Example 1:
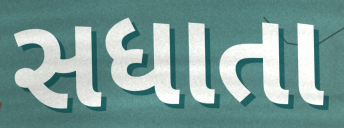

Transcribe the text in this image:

સધાતા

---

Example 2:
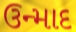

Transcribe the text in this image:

ઉન્માદ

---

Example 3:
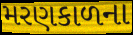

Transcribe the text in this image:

મરણકાળના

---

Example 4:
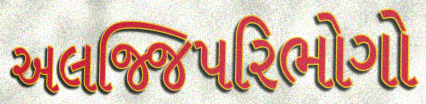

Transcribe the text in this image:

અલજ્જિપરિભોગો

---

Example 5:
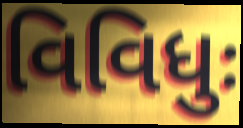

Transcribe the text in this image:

વિવિધુઃ